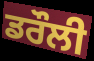
ਡਰੌਲੀ